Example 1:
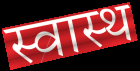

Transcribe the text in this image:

स्वास्थ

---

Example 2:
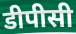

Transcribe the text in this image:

डीपीसी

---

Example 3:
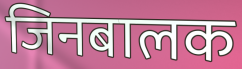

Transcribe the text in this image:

जिनबालक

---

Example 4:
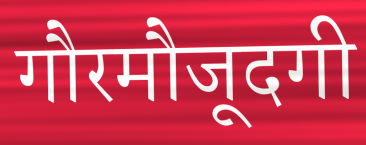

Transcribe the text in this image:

गौरमौजूदगी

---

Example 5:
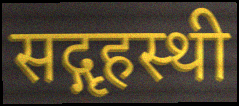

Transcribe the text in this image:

सद्गृहस्थी